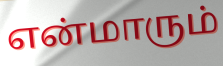
என்மாரும்